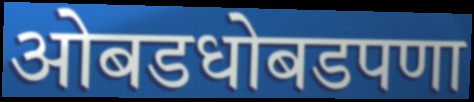
ओबडधोबडपणा